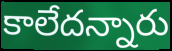
కాలేదన్నారు